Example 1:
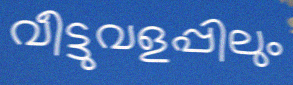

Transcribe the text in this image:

വീട്ടുവളപ്പിലും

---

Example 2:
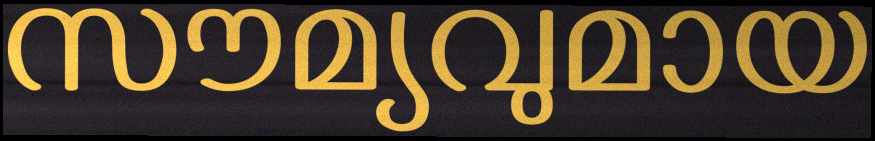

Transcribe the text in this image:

സൗമ്യവുമായ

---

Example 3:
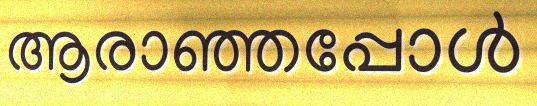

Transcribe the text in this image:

ആരാഞ്ഞപ്പോൾ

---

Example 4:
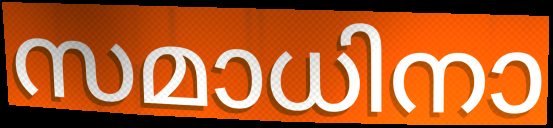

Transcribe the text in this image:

സമാധിനാ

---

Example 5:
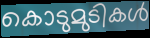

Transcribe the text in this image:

കൊടുമുടികൾ